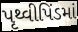
પૃથ્વીપિંડમાં